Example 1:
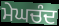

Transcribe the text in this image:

ਮੇਘਚੰਦ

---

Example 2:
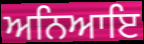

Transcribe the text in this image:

ਅਨਿਆਇ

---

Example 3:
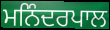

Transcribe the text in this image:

ਮਨਿੰਦਰਪਾਲ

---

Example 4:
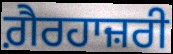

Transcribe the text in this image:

ਗ਼ੈਰਹਾਜ਼ਰੀ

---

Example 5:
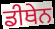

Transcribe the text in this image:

ਡੀਥੇਨ